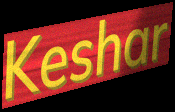
Keshar